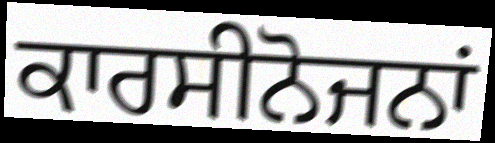
ਕਾਰਸੀਨੋਜਨਾਂ